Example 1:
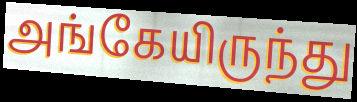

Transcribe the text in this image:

அங்கேயிருந்து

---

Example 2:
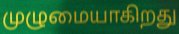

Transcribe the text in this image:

முழுமையாகிறது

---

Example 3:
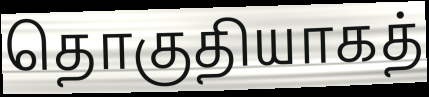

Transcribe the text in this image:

தொகுதியாகத்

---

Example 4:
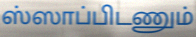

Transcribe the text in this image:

ஸ்ஸாப்பிடணும்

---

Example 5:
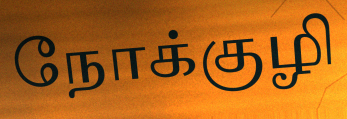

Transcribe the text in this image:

நோக்குழி